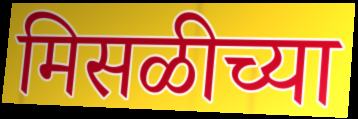
मिसळीच्या